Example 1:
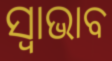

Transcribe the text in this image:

ସ୍ୱାଭାବ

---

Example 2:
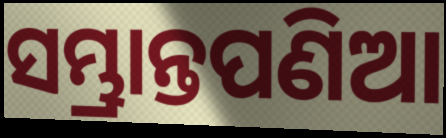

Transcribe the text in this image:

ସମ୍ଭ୍ରାନ୍ତପଣିଆ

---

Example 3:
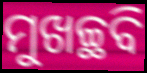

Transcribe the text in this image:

ମୁଖଚ୍ଛବି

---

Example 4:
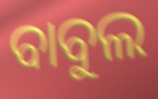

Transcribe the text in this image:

ବାବୁଲ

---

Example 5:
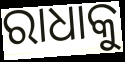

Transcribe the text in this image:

ରାଧାକୁ